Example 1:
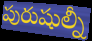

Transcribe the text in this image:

పురుషుల్నీ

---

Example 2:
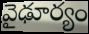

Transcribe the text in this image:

వైఢూర్యం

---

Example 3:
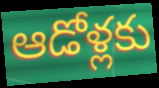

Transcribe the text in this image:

ఆడోళ్లకు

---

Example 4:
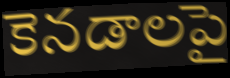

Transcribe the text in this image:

కెనడాలపై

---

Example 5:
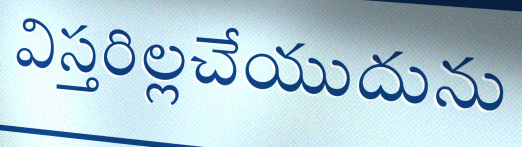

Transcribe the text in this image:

విస్తరిల్లచేయుదును